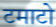
टमाटो